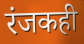
रंजकही